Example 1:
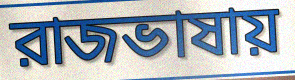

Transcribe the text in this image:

রাজভাষায়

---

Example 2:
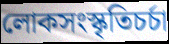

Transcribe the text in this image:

লোকসংস্কৃতিচর্চা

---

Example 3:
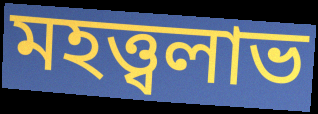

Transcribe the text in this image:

মহত্ত্বলাভ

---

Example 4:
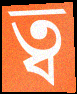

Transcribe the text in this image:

ত্ব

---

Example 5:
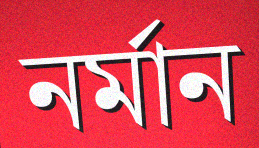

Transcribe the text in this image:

নর্মান